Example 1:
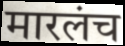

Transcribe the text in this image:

मारलंच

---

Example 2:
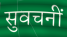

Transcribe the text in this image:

सुवचनीं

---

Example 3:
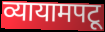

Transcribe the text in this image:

व्यायामपटू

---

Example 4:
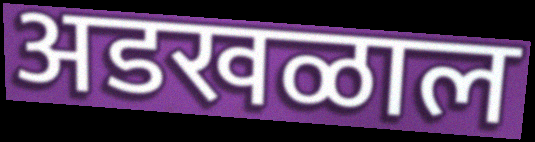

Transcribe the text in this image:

अडखळाल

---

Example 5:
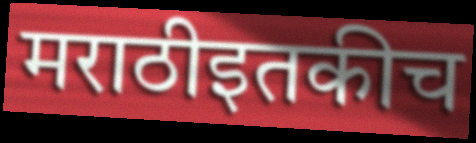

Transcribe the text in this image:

मराठीइतकीच